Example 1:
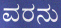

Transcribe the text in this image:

ವರನು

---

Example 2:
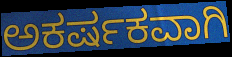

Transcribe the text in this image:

ಅಕರ್ಷಕವಾಗಿ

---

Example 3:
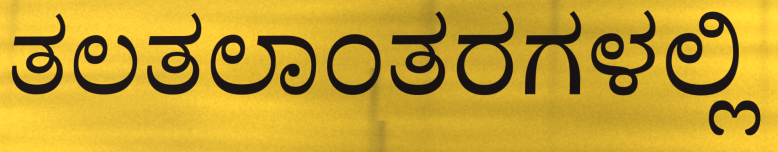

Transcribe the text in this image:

ತಲತಲಾಂತರಗಳಲ್ಲಿ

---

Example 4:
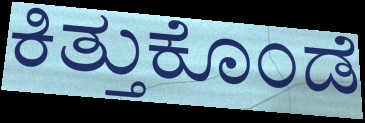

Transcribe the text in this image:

ಕಿತ್ತುಕೊಂಡೆ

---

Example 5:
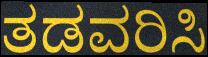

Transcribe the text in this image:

ತಡವರಿಸಿ